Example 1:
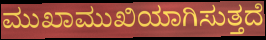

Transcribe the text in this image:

ಮುಖಾಮುಖಿಯಾಗಿಸುತ್ತದೆ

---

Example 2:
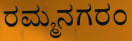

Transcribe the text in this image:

ರಮ್ಮನಗರಂ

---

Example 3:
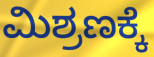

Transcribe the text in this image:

ಮಿಶ್ರಣಕ್ಕೆ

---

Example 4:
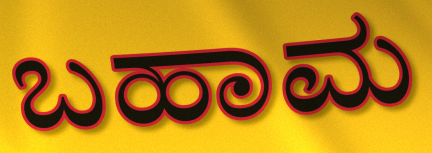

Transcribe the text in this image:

ಬಹಾಮ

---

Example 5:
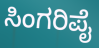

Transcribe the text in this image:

ಸಿಂಗರಿಪೈ